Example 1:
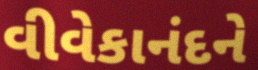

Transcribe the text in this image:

વીવેકાનંદને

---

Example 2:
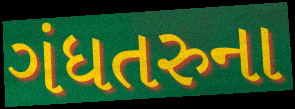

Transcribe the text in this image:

ગંધતરુના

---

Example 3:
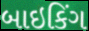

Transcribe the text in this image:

બાઇકિંગ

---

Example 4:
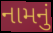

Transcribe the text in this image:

નામનું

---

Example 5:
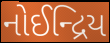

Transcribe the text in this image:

નોઈન્દ્રિય